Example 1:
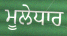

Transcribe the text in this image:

ਮੂਲੇਧਾਰ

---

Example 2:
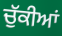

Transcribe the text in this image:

ਚੁੱਕੀਆਂ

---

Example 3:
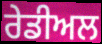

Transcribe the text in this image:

ਰੇਡੀਅਲ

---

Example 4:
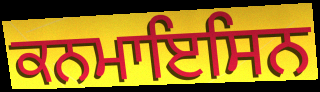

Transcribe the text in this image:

ਕਨਮਾਇਸਿਨ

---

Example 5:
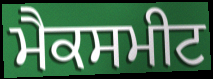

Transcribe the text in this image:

ਮੈਕਸਮੀਟ